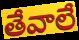
తేవాలే